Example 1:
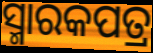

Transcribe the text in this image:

ସ୍ମାରକପତ୍ର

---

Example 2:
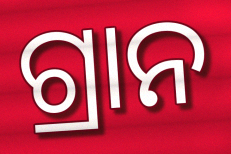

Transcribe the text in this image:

ଗ୍ରାନ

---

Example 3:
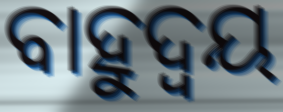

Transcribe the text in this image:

ବାହୁଦ୍ୱୟ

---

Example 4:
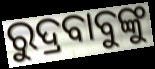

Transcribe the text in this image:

ରୁଦ୍ରବାବୁଙ୍କୁ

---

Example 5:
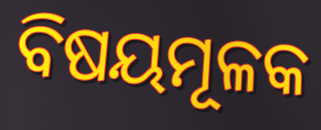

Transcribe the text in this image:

ବିଷୟମୂଳକ